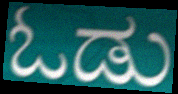
ಓಡು